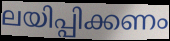
ലയിപ്പിക്കണം